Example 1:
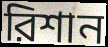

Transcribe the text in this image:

রিশান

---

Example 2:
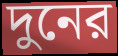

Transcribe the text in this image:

দুনের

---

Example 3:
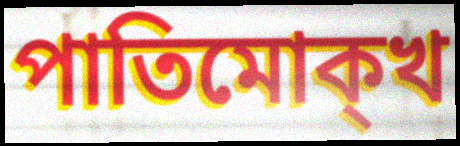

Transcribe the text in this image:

পাতিমোক্খ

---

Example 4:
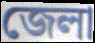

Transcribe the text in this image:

জেলা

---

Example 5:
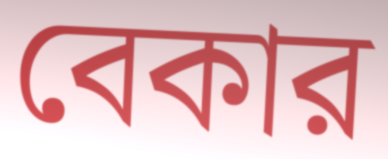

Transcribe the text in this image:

বেকার